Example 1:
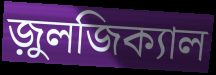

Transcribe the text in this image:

জ়ুলজিক্যাল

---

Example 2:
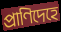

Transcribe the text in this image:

প্রাণিদেহে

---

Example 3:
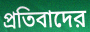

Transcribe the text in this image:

প্রতিবাদের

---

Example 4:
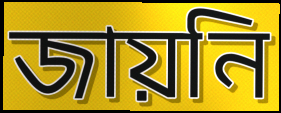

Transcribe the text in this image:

জায়নি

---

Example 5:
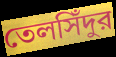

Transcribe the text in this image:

তেলসিঁদুর